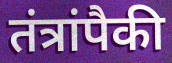
तंत्रांपैकी